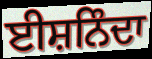
ਈਸ਼ਨਿੰਦਾ